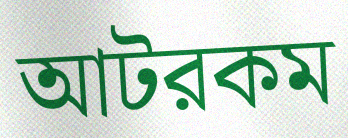
আটরকম